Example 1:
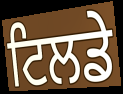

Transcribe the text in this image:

ਟਿਲਡੇ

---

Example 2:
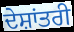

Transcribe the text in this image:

ਦੇਸ਼ਾਂਤਰੀ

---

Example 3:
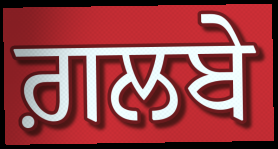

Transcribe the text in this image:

ਗ਼ਲਬੇ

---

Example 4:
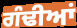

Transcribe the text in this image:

ਗੰਢੀਆਂ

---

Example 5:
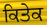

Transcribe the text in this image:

ਕਿਤੇਕ